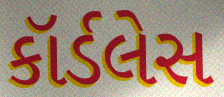
કૉર્ડલેસ